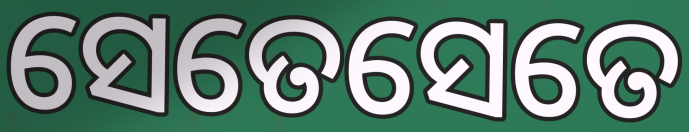
ସେତେସେତେ